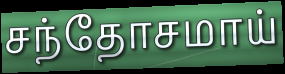
சந்தோசமாய்